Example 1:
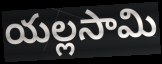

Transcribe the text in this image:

యల్లసామి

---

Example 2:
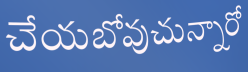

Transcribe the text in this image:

చేయబోవుచున్నారో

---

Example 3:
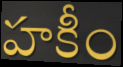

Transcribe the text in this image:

హకీం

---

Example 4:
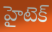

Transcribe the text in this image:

హైటెక్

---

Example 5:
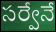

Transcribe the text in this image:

సర్వేనే